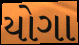
યોગા